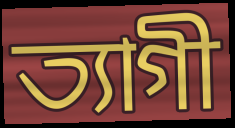
ত্যাগী